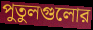
পুতুলগুলোর